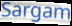
Sargam